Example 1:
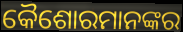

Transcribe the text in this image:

କୈଶୋରମାନଙ୍କର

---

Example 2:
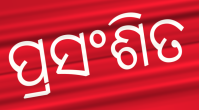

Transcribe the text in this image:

ପ୍ରସଂଶିତ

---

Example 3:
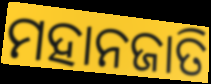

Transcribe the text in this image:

ମହାନଜାତି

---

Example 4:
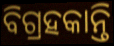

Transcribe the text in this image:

ବିଗ୍ରହକାନ୍ତି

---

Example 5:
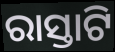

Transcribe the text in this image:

ରାସ୍ତାଟି